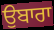
ਉਬਾਰਾ